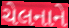
ચેલનાને